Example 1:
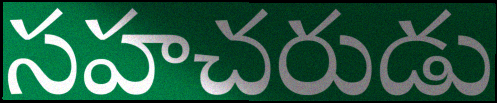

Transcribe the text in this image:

సహచరుడు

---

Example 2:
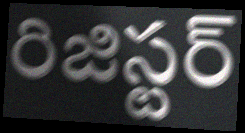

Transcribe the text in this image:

రిజిస్టర్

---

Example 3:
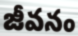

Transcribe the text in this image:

జీవనం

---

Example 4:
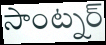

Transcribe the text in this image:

సాంట్నర్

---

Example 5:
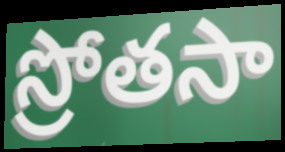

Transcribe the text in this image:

స్రోతసా